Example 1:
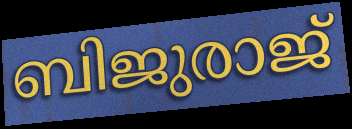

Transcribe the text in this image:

ബിജുരാജ്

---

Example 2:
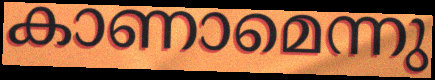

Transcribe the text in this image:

കാണാമെന്നു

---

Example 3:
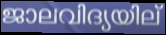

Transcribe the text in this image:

ജാലവിദ്യയില്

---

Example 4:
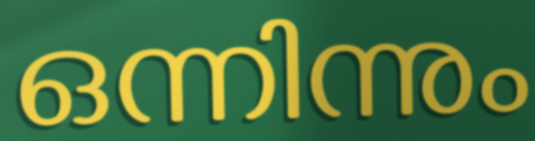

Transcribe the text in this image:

ഒന്നിന്നും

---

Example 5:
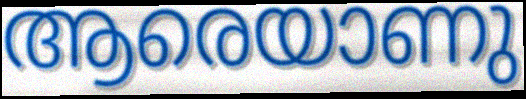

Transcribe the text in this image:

ആരെയാണു